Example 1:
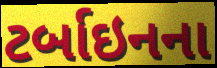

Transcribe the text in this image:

ટર્બાઇનના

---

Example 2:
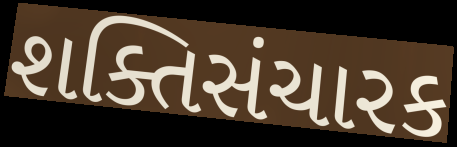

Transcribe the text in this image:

શક્તિસંચારક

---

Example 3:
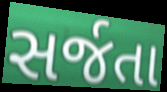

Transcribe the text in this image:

સર્જતા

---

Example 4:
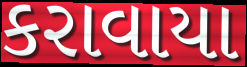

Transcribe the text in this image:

કરાવાયા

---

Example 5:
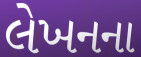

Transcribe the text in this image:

લેખનના